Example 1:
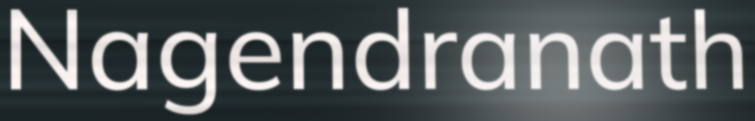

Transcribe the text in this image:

Nagendranath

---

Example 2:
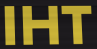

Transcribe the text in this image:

IHT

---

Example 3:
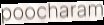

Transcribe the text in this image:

poocharam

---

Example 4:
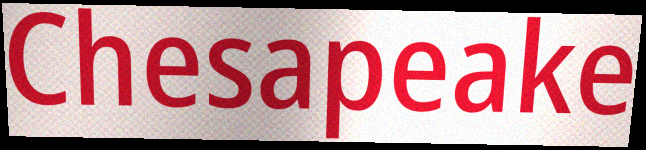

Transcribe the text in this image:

Chesapeake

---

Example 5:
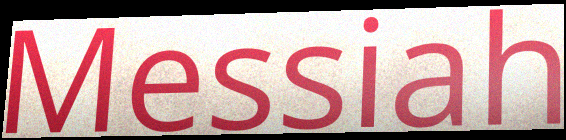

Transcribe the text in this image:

Messiah